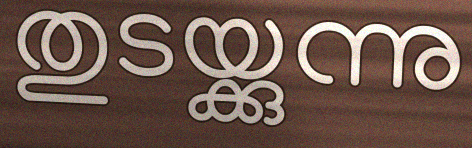
തുടയ്ക്കുന്നു